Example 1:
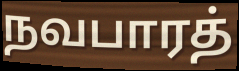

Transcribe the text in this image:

நவபாரத்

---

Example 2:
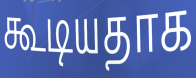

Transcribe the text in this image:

கூடியதாக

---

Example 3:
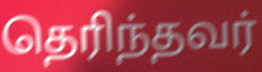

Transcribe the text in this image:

தெரிந்தவர்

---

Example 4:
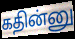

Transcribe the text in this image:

கதின்னு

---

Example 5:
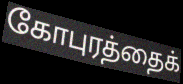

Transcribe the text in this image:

கோபுரத்தைக்